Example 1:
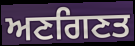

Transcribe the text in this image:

ਅਣਗਿਣਤ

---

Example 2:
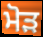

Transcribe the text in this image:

ਮੋੜ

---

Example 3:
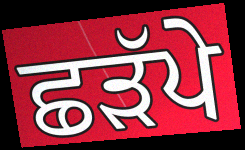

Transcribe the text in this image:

ਛੜੱਪੇ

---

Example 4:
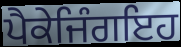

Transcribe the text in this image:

ਪੈਕੇਜਿੰਗਇਹ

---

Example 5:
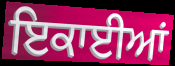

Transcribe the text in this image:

ਇਕਾਈਆਂ